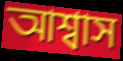
আশ্বাস